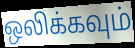
ஒலிக்கவும்